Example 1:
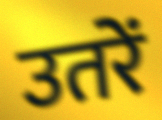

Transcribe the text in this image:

उतरें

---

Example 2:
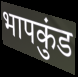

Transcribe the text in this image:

भापकुंड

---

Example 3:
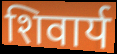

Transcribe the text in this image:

शिवार्य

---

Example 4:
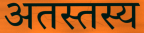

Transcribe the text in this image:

अतस्तस्य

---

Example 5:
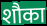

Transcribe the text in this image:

शौका